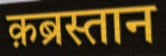
क़ब्रस्तान